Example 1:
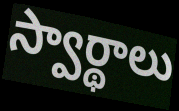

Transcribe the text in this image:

స్వార్థాలు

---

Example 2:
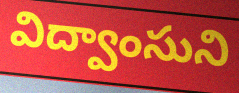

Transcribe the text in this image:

విద్వాంసుని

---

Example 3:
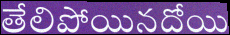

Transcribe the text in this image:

తేలిపోయినదోయి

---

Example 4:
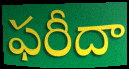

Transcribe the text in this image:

ఫరీదా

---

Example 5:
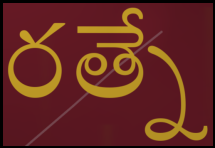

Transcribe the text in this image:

రత్నే